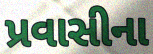
પ્રવાસીના